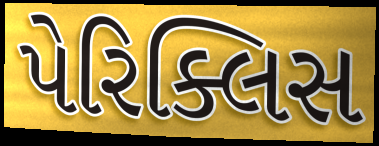
પેરિક્લિસ